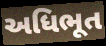
અધિભૂત